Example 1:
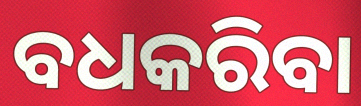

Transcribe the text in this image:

ବଧକରିବା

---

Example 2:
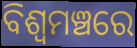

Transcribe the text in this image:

ବିଶ୍ୱମଞ୍ଚରେ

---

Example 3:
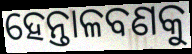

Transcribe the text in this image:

ହେନ୍ତାଳବଣକୁ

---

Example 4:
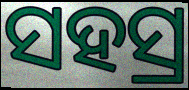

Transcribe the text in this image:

ସହସ୍ର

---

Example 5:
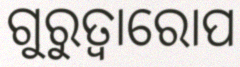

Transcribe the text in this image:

ଗୁରୁତ୍ୱାରୋପ